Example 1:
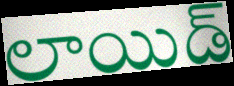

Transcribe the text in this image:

లాయిడ్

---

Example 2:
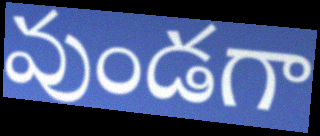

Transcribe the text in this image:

వుండగా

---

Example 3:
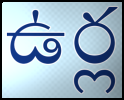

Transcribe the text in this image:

ఉర్ల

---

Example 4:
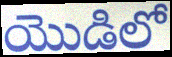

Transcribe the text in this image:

యొడిలో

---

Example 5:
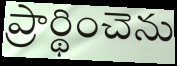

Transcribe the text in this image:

ప్రార్థించెను